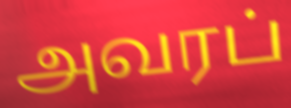
அவரப்